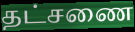
தட்சணை